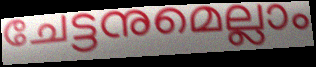
ചേട്ടനുമെല്ലാം